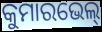
କୁମାରଭେଲ୍